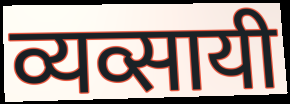
व्यव्सायी